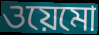
ওয়েমো